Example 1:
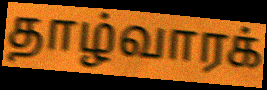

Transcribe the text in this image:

தாழ்வாரக்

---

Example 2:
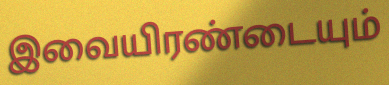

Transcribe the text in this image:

இவையிரண்டையும்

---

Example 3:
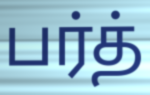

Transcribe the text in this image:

பர்த்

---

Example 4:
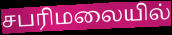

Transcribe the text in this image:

சபரிமலையில்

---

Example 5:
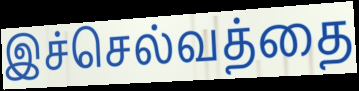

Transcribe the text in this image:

இச்செல்வத்தை